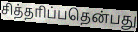
சித்தரிப்பதென்பது